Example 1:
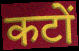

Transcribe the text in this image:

कटों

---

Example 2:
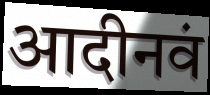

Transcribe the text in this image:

आदीनवं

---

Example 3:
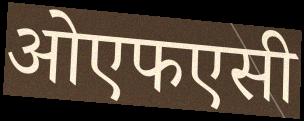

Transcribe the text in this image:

ओएफएसी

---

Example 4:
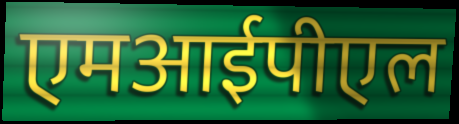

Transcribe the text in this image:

एमआईपीएल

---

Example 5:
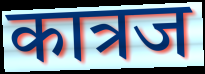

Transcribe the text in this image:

कात्रज